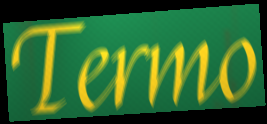
Termo